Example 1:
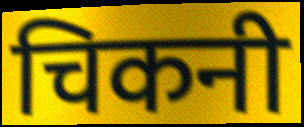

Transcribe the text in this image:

चिकनी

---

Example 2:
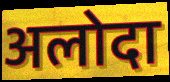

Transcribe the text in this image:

अलोदा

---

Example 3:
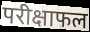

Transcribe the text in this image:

परीक्षाफल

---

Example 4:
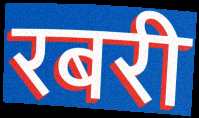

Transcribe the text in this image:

रबरी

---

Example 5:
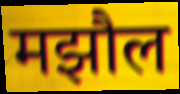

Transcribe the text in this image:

मझौल